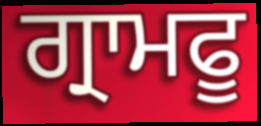
ਗ੍ਰਾਮਫੂ